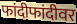
फांदीफांदीवर